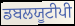
ਡਬਲਯੂਟੀਪੀ